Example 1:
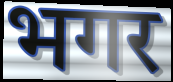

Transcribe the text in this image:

भगर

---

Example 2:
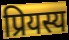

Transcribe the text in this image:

प्रियस्य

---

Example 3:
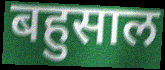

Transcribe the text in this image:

बहुसाल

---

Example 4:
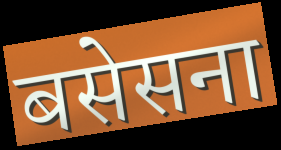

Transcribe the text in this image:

बसेसना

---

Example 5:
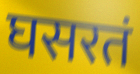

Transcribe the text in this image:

घसरतं